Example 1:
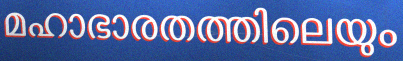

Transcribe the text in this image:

മഹാഭാരതത്തിലെയും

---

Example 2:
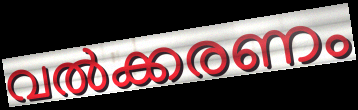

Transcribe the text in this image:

വൽക്കരണം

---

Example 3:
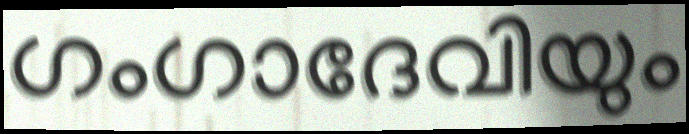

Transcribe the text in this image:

ഗംഗാദേവിയും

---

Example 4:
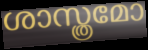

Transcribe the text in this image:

ശാസ്ത്രമോ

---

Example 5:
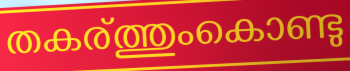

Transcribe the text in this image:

തകര്ത്തുംകൊണ്ടു